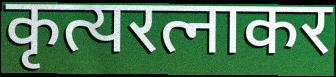
कृत्यरत्नाकर